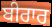
ਬੀਰਾਰ